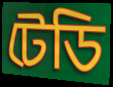
টেডি